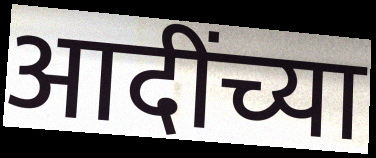
आदींच्या